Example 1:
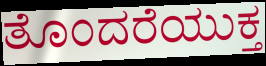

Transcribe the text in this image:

ತೊಂದರೆಯುಕ್ತ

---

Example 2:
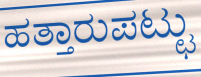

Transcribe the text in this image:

ಹತ್ತಾರುಪಟ್ಟು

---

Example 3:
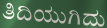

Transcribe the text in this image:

ತಿದಿಯುಗಿದು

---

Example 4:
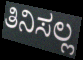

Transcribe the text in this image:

ತಿನಿಸಲ್ಲ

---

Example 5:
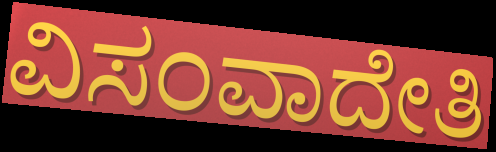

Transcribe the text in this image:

ವಿಸಂವಾದೇತಿ